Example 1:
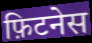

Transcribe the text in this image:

फ़िटनेस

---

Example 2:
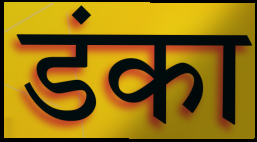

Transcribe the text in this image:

डंका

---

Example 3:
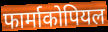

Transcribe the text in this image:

फार्माकोपियल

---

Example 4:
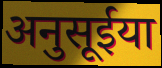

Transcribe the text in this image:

अनुसूईया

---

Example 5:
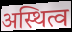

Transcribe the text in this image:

अस्थित्व